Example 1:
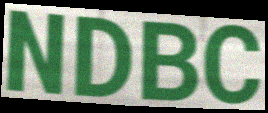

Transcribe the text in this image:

NDBC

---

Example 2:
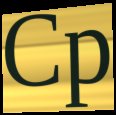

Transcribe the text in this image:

Cp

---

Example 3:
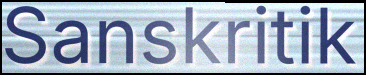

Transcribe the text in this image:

Sanskritik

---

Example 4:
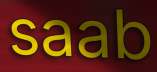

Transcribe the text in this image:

saab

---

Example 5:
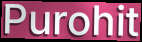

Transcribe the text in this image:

Purohit